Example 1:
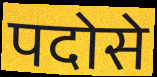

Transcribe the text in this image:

पदोसे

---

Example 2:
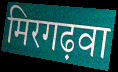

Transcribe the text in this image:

मिरगढ़वा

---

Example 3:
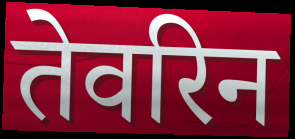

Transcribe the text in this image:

तेवरिन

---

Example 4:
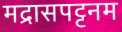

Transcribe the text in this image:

मद्रासपट्टनम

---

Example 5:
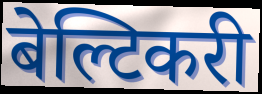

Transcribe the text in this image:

बेल्टिकरी